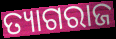
ତ୍ୟାଗରାଜ